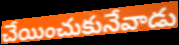
చేయించుకునేవాడు